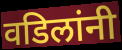
वडिलांनी